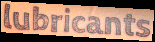
lubricants